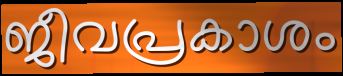
ജീവപ്രകാശം